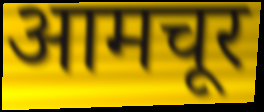
आमचूर